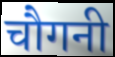
चौगनी